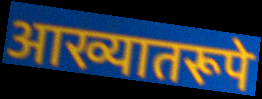
आख्यातरूपे